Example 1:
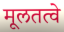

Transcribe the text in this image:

मूलतत्वे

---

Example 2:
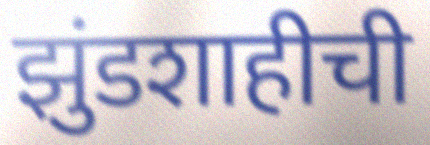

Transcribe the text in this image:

झुंडशाहीची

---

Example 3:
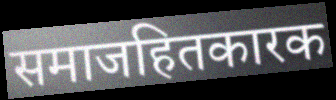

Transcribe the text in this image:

समाजहितकारक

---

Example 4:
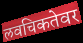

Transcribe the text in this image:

लवचिकतेवर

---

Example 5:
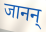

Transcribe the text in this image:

जानन्